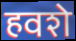
हवशे